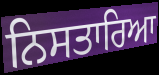
ਨਿਸਤਾਰਿਆ